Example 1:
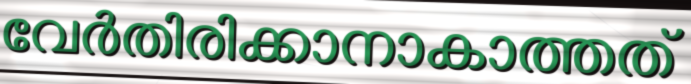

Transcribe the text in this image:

വേർതിരിക്കാനാകാത്തത്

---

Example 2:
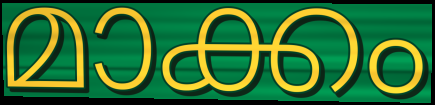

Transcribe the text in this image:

മാക്കം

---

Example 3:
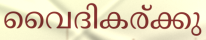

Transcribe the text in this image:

വൈദികര്ക്കു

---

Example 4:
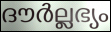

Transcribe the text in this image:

ദൗർല്ലഭ്യം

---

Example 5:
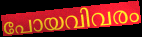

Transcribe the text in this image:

പോയവിവരം